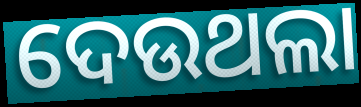
ଦେଉଥଲା